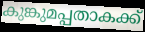
കുങ്കുമപ്പതാകക്ക്